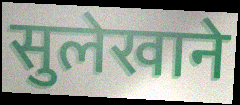
सुलेखाने